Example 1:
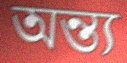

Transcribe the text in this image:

অন্ত্য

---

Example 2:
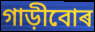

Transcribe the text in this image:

গাড়ীবোৰ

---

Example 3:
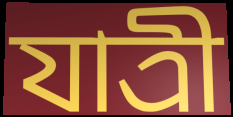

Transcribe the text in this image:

যাত্ৰী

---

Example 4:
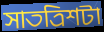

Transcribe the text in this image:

সাতত্ৰিশটা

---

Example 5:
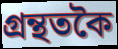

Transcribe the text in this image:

গ্ৰন্থতকৈ